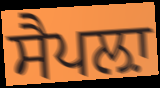
ਸੈਪਲ਼ਾ